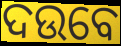
ଦଉବେ